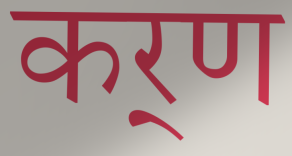
कर्ण